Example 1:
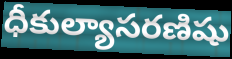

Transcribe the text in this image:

ధీకుల్యాసరణిషు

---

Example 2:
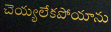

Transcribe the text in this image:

చెయ్యలేకపోయాను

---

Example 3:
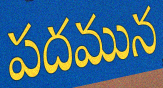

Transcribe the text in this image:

పదమున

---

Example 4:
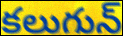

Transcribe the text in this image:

కలుగున్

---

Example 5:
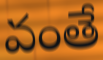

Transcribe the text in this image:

వంతే